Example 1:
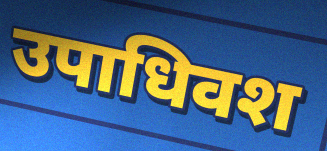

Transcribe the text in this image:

उपाधिवश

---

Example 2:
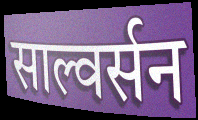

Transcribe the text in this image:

साल्वर्सन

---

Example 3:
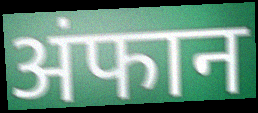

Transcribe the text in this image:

अंफान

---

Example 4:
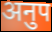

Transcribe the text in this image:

अनुप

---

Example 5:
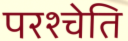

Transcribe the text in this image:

परश्चेति